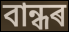
বান্ধৰ